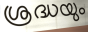
ശ്രദ്ധയും